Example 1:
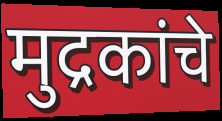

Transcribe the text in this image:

मुद्रकांचे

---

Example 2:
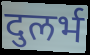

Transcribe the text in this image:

दुलर्भ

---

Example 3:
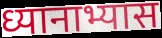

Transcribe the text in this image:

ध्यानाभ्यास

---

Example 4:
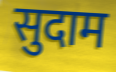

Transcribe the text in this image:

सुदाम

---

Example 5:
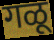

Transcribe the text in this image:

गळू